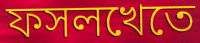
ফসলখেতে